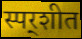
स्पर्शीत